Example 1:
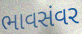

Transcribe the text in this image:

ભાવસંવર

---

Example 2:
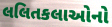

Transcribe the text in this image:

લલિતકલાઓનો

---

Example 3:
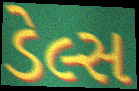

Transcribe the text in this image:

ડેલ્સ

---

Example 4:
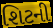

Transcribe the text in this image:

શિટની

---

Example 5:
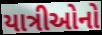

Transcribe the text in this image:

યાત્રીઓનો